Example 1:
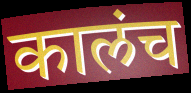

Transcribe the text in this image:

कालंच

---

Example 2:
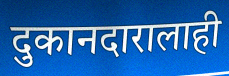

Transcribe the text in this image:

दुकानदारालाही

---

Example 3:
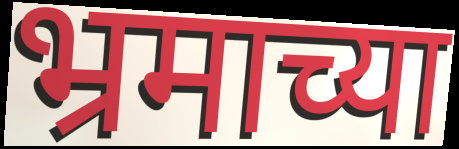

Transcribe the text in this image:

भ्रमाच्या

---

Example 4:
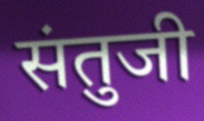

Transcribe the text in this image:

संतुजी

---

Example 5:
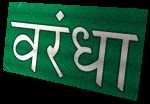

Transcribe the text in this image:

वरंधा